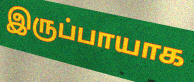
இருப்பாயாக